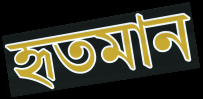
হৃতমান